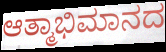
ಆತ್ಮಾಭಿಮಾನದ